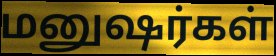
மனுஷர்கள்